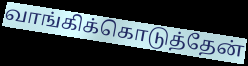
வாங்கிக்கொடுத்தேன்